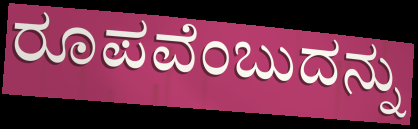
ರೂಪವೆಂಬುದನ್ನು